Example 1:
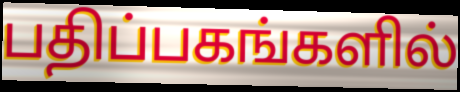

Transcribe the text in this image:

பதிப்பகங்களில்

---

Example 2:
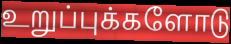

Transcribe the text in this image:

உறுப்புக்களோடு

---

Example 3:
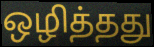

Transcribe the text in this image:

ஒழித்தது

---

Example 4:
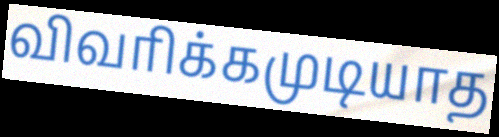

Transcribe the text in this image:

விவரிக்கமுடியாத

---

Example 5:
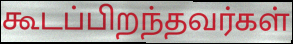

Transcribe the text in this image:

கூடப்பிறந்தவர்கள்